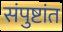
संपुष्टांत